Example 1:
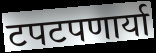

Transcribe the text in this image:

टपटपणार्या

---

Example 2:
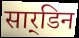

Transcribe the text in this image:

सार्डिन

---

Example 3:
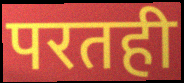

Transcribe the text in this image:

परतही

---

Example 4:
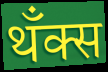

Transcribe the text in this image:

थँक्स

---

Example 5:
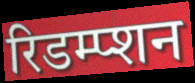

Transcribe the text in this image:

रिडम्प्शन